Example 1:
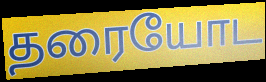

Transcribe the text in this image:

தரையோட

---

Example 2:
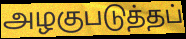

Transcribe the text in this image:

அழகுபடுத்தப்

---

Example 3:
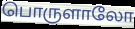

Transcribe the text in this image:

பொருளாலோ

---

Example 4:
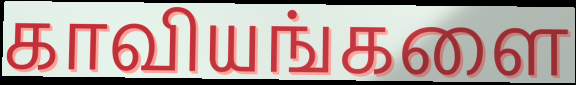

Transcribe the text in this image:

காவியங்களை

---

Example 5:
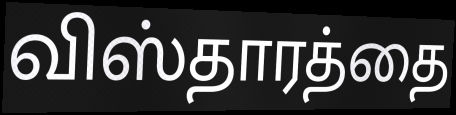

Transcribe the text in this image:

விஸ்தாரத்தை